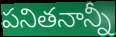
పనితనాన్నీ